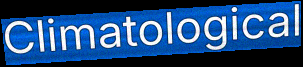
Climatological